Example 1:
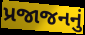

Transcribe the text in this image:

પ્રજાજનનું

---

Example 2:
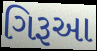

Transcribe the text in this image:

ગિરૂઆ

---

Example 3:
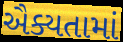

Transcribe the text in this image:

ઐક્યતામાં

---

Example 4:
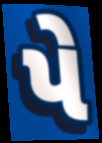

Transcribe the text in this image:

પે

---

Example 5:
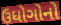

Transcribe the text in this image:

ઉધોગોનો